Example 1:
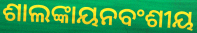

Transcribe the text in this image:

ଶାଲଙ୍କାୟନବଂଶୀୟ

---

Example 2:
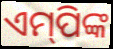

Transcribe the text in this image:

ଏମ୍‌ପିଙ୍କ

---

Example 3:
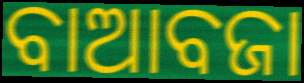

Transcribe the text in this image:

ବାଆବଜା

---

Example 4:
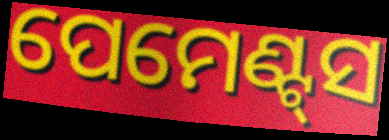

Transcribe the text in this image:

ପେମେଣ୍ଟ୍‌ସ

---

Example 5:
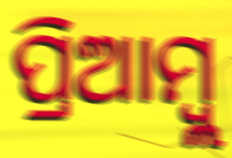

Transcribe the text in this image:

ପ୍ରିଆମ୍ବ୍ଲ